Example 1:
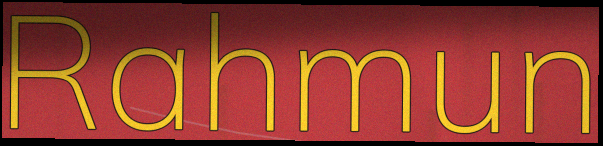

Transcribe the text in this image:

Rahmun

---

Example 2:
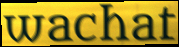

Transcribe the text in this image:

wachat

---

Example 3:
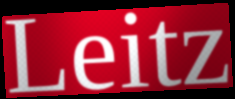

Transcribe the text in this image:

Leitz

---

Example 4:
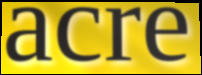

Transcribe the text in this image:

acre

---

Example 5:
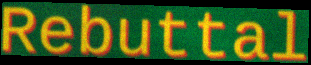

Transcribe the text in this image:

Rebuttal